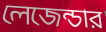
লেজেন্ডার